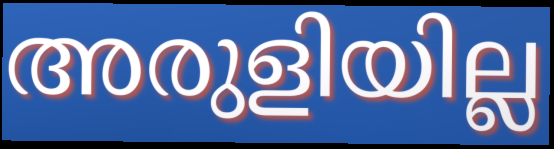
അരുളിയില്ല